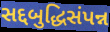
સદ્દબુદ્ધિસંપન્ન